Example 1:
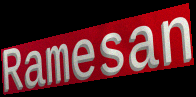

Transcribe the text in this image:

Ramesan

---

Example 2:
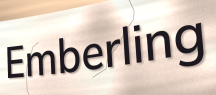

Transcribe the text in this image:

Emberling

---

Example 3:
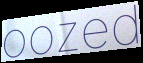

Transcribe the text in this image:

oozed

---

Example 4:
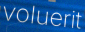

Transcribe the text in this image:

voluerit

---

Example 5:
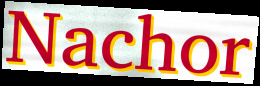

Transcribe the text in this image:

Nachor